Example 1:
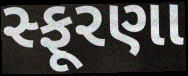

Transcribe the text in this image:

સ્ફૂરણા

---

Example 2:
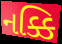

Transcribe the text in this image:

નક્કિ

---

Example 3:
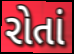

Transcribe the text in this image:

રોતાં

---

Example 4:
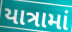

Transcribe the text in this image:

યાત્રામાં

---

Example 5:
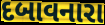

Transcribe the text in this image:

દબાવનારા